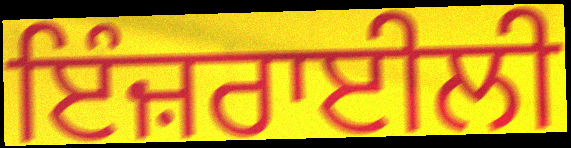
ਇੰਜ਼ਰਾਈਲੀ